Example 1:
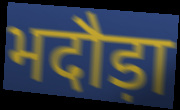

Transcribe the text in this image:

भदौड़ा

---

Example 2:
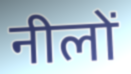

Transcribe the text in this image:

नीलों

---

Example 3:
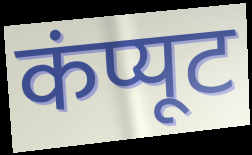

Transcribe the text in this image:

कंप्यूट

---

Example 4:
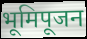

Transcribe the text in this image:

भूमिपूजन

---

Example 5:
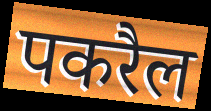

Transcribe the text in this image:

पकरैल